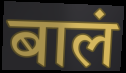
बालं